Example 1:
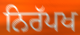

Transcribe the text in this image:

ਨਿਰੱਪਖ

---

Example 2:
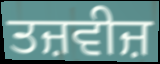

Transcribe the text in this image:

ਤਜ਼ਵੀਜ਼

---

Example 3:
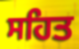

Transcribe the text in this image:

ਸਹਿਤ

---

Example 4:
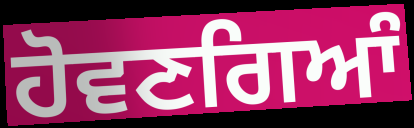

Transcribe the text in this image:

ਹੋਵਣਗਿਆੰ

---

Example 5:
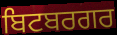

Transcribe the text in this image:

ਬਿਟਬਰਗਰ